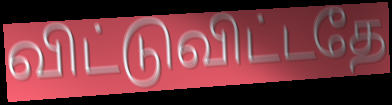
விட்டுவிட்டதே